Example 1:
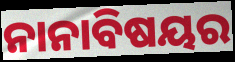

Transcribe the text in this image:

ନାନାବିଷୟର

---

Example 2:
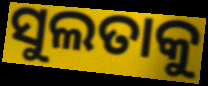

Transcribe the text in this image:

ସୁଲତାକୁ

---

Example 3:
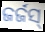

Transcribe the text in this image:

ଜର୍ଜସ୍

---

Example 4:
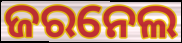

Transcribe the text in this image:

ଜରନେଲ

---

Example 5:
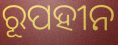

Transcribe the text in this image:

ରୂପହୀନ